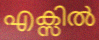
എക്സിൽ